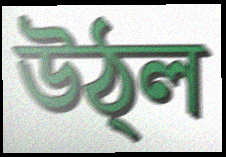
উঠ্ল